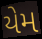
યેમ